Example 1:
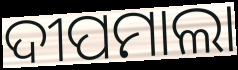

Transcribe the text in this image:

ଦୀପମାଲା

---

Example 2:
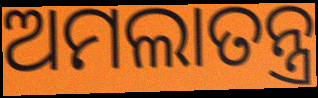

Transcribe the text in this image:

ଅମଲାତନ୍ତ୍ର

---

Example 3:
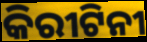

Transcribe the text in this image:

କିରୀଟିନୀ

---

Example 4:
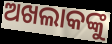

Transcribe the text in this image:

ଅଖଲାକଙ୍କୁ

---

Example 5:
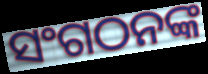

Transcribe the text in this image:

ସଂଗଠନଙ୍କ